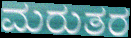
ಮರುತರ